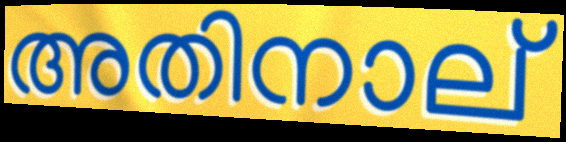
അതിനാല്